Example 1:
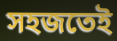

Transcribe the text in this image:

সহজতেই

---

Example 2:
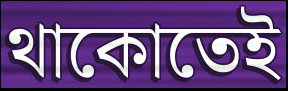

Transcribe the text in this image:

থাকোতেই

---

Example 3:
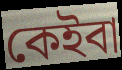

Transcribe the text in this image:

কেইবা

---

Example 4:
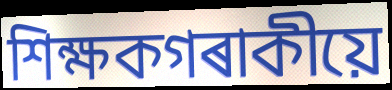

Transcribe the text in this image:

শিক্ষকগৰাকীয়ে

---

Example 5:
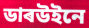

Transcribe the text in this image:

ডাৰউইনে